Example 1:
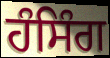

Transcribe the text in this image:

ਹੰਸਿੰਗ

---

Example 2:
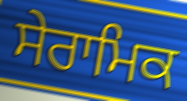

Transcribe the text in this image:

ਸੇਰਾਮਿਕ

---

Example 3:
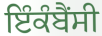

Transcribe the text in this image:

ਇੰਕੰਬੈਂਸੀ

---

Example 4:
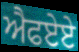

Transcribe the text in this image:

ਐਫਏਏ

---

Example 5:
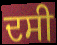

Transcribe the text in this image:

ਦਸੀ